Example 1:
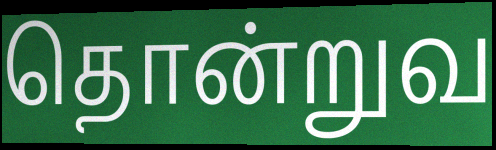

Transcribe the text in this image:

தொன்றுவ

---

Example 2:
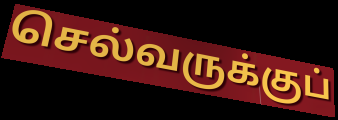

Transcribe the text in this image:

செல்வருக்குப்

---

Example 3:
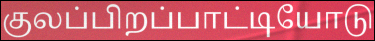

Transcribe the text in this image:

குலப்பிறப்பாட்டியோடு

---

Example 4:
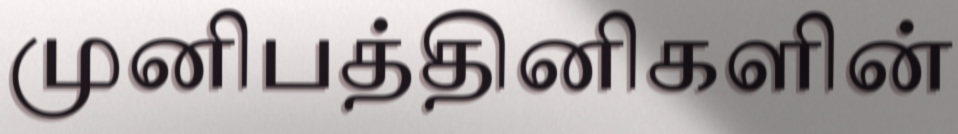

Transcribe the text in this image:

முனிபத்தினிகளின்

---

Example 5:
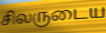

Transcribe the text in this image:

சிலருடைய